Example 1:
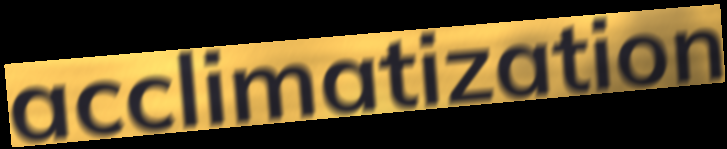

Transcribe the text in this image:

acclimatization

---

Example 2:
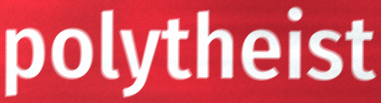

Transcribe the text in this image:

polytheist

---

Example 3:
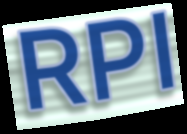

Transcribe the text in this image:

RPI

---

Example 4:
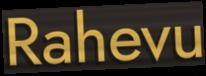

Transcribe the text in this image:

Rahevu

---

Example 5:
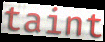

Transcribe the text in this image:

taint